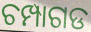
ଚମ୍ପାଗଡ